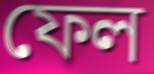
ফেল